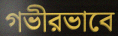
গভীরভাবে